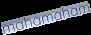
mahamaham